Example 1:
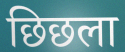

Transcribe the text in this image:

छिछला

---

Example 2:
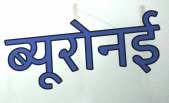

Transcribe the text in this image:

ब्यूरोनई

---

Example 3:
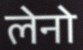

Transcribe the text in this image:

लेनो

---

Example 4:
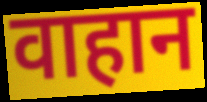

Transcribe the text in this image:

वाहान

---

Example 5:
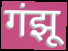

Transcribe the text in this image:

गंझू